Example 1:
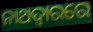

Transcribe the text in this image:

ନାଥଦ୍ୱାରରେ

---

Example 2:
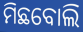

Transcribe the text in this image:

ମିଛବୋଲି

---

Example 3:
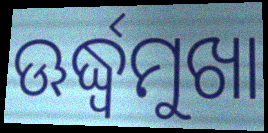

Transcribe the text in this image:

ଊର୍ଦ୍ଧ୍ବମୁଖା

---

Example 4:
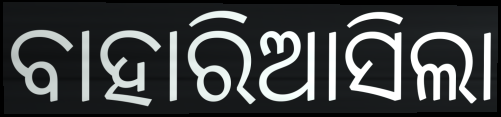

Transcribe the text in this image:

ବାହାରିଆସିଲା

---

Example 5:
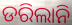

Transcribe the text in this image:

ଡରିଲାନି